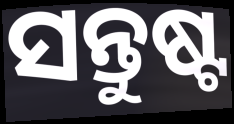
ସନ୍ତୁଷ୍ଟ